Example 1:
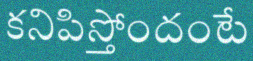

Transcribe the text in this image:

కనిపిస్తోందంటే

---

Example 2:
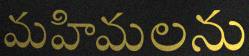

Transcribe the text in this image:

మహిమలను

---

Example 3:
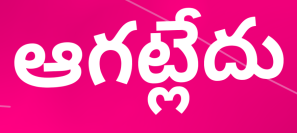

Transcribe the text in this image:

ఆగట్లేదు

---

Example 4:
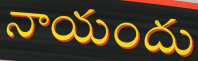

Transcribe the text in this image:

నాయందు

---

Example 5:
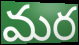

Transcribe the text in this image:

మర